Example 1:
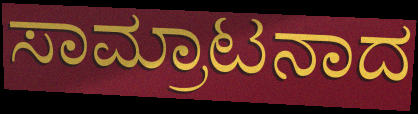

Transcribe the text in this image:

ಸಾಮ್ರಾಟನಾದ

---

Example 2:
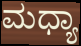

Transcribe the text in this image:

ಮಧ್ಯಾ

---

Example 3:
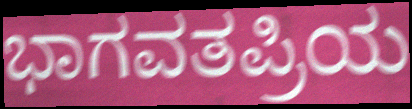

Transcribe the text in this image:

ಭಾಗವತಪ್ರಿಯ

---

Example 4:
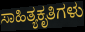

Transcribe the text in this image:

ಸಾಹಿತ್ಯಕೃತಿಗಳು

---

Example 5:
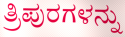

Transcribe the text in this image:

ತ್ರಿಪುರಗಳನ್ನು